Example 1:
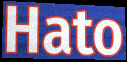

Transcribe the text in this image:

Hato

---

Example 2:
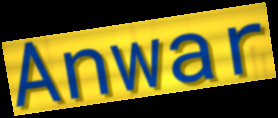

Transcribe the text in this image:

Anwar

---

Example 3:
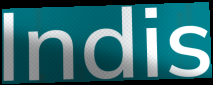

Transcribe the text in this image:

Indis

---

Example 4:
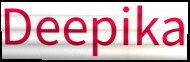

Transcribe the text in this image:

Deepika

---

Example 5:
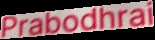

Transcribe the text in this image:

Prabodhrai